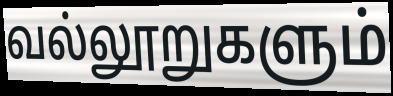
வல்லூறுகளும்